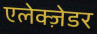
एलेक्ज़ेडर